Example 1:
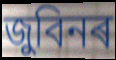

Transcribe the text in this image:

জুবিনৰ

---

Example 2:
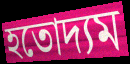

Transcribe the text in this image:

হতোদ্যম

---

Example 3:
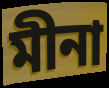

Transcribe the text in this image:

মীনা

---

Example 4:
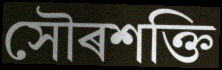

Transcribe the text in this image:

সৌৰশক্তি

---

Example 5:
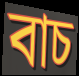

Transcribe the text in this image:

বাচ